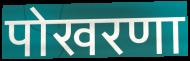
पोखरणा